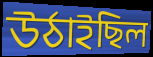
উঠাইছিল